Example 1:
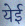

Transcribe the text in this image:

येई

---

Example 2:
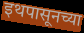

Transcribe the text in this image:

इथपासूनच्या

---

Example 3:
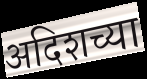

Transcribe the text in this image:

अदिशच्या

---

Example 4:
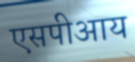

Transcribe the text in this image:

एसपीआय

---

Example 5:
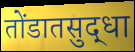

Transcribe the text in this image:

तोंडातसुद्धा